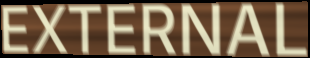
EXTERNAL